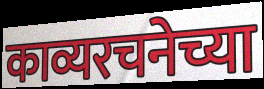
काव्यरचनेच्या